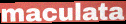
maculata